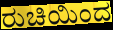
ರುಚಿಯಿಂದ